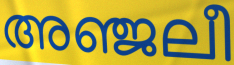
അഞ്ജലീ